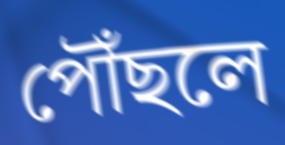
পৌঁছলে